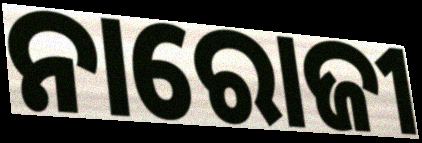
ନାରୋଜୀ